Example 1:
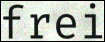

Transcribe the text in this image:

frei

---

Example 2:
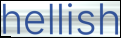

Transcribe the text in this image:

hellish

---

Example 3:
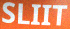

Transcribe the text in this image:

SLIIT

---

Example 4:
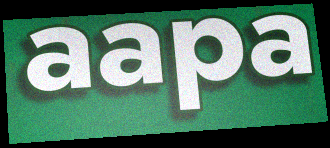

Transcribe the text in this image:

aapa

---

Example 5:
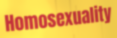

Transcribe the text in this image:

Homosexuality